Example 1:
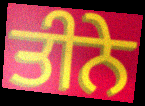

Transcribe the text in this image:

ਤੀਨੇ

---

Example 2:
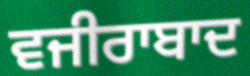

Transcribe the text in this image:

ਵਜੀਰਾਬਾਦ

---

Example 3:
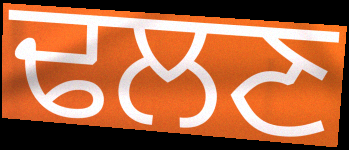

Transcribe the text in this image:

ਢਲਣ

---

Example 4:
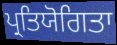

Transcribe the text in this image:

ਪ੍ਰਤਿਯੋਗਿਤਾ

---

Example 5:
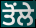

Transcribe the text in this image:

ਤੋਂਲੇ